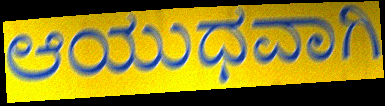
ಆಯುಧವಾಗಿ